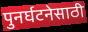
पुनर्घटनेसाठी